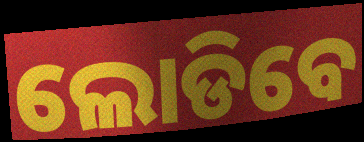
ଲୋଡିବେ